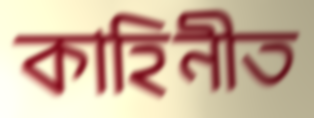
কাহিনীত